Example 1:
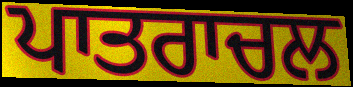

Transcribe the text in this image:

ਪਾਤਰਾਚਲ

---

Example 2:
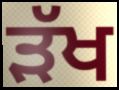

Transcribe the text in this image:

ੜੱਖ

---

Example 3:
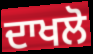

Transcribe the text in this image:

ਦਾਖਲੋ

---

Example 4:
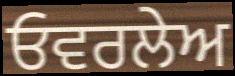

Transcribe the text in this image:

ਓਵਰਲੇਅ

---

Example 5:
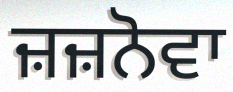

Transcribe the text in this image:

ਜ਼ਜ਼ਨੋਵਾ